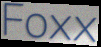
Foxx